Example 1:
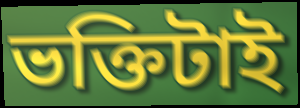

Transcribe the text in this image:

ভক্তিটাই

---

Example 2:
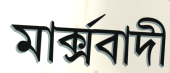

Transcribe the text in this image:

মার্ক্সবাদী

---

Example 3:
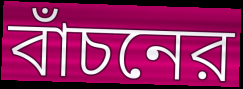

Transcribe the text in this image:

বাঁচনের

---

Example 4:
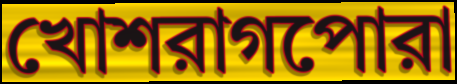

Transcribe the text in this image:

খোশরাগপোরা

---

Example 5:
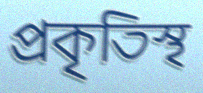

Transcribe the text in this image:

প্রকৃতিস্থ